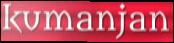
kumanjan